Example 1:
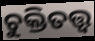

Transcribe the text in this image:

ଚୁକ୍ତିତତ୍ତ୍ଵ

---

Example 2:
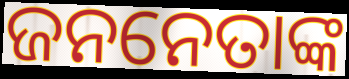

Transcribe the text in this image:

ଜନନେତାଙ୍କ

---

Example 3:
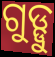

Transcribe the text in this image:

ଗୁଡ୍ଡୁ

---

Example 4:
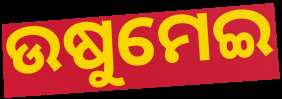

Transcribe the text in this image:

ଉଷୁମେଇ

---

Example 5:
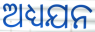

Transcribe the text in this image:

ଅଧ୍ୟଯନ